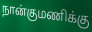
நான்குமணிக்கு